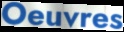
Oeuvres